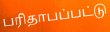
பரிதாபப்பட்டு